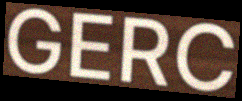
GERC